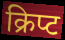
क्रिप्ट